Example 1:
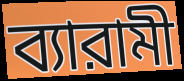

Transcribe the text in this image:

ব্যারামী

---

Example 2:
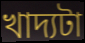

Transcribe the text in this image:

খাদ্যটা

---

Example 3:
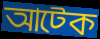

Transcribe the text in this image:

আট্কে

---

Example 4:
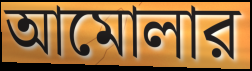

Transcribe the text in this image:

আমোলার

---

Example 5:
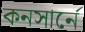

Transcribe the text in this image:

কনসার্নে